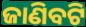
ଜାଣିବଟି